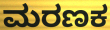
ಮರಣಕ